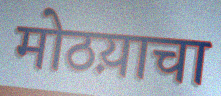
मोठय़ाचा